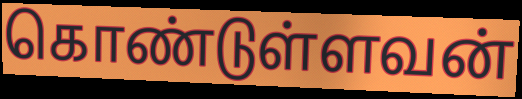
கொண்டுள்ளவன்